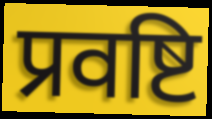
प्रवष्टि